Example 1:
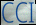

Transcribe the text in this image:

CCI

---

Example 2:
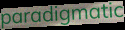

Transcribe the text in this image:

paradigmatic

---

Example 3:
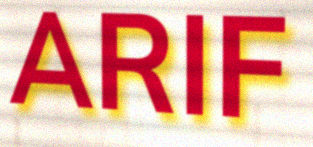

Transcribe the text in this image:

ARIF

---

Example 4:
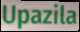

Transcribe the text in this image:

Upazila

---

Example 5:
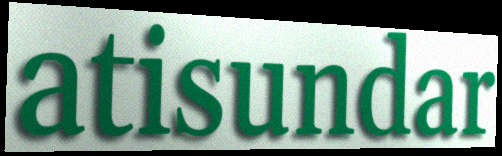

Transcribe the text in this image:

atisundar